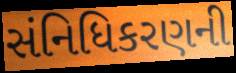
સંનિધિકરણની